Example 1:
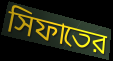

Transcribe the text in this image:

সিফাতের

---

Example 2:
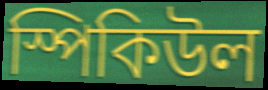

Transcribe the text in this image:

স্পিকিউল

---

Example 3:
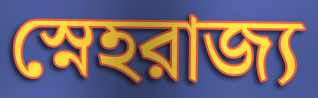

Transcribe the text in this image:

স্নেহরাজ্য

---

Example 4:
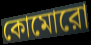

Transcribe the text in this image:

কোমোরো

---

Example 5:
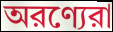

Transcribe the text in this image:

অরণ্যেরা